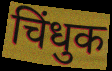
चिंधुक